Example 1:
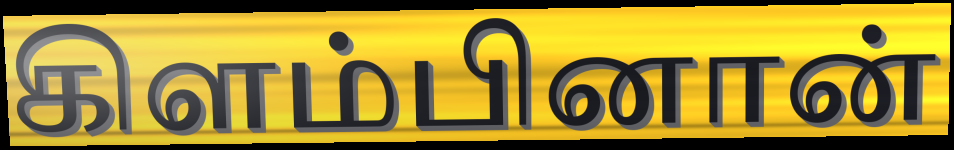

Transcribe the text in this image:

கிளம்பினான்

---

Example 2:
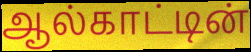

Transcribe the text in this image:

ஆல்காட்டின்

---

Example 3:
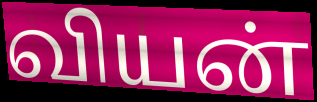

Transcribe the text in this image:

வியன்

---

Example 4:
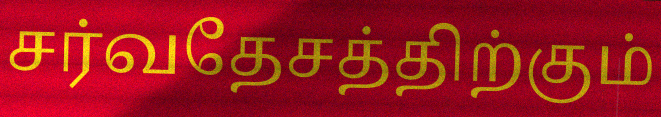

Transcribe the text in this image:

சர்வதேசத்திற்கும்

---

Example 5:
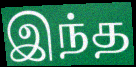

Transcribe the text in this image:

இந்த